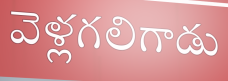
వెళ్లగలిగాడు